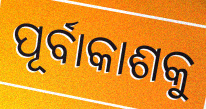
ପୂର୍ବାକାଶକୁ